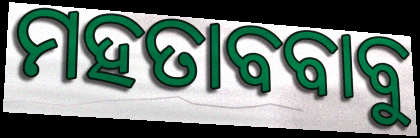
ମହତାବବାବୁ